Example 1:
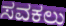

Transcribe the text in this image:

ಸವಕಲು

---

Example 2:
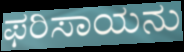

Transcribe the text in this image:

ಫರಿಸಾಯನು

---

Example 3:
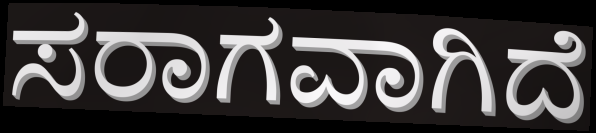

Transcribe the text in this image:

ಸರಾಗವಾಗಿದೆ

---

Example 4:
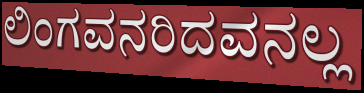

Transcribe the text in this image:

ಲಿಂಗವನರಿದವನಲ್ಲ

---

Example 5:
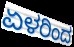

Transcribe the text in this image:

ಏಳರಿಂದ